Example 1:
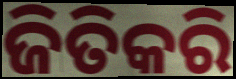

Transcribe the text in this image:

ଜିତିକରି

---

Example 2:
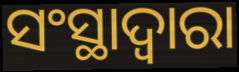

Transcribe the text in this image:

ସଂସ୍ଥାଦ୍ଵାରା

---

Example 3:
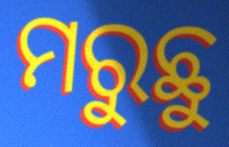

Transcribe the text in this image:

ମରୁଛୁ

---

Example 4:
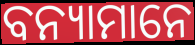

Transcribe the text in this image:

ବନ୍ୟାମାନେ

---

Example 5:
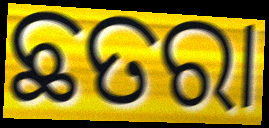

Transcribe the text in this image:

ଛତରା